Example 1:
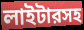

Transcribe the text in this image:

লাইটারসহ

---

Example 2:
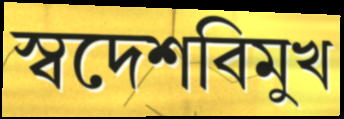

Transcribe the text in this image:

স্বদেশবিমুখ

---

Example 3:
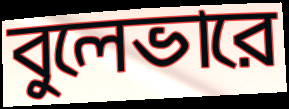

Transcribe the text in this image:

বুলেভারে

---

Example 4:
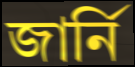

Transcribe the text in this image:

জার্নি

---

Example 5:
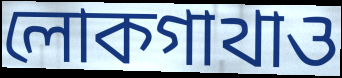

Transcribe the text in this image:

লোকগাথাও